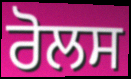
ਰੋਲਸ